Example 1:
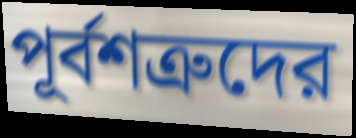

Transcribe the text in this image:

পূর্বশত্রুদের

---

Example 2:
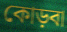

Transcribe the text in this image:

কোড়বা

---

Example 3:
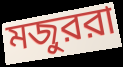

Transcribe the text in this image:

মজুররা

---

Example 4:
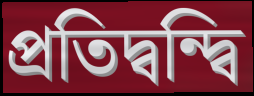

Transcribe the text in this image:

প্রতিদ্বন্দ্বি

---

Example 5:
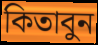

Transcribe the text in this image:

কিতাবুন